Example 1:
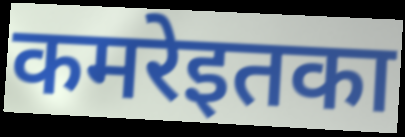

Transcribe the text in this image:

कमरेइतका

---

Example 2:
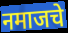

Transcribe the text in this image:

नमाजचे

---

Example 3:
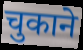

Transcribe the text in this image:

चुकाने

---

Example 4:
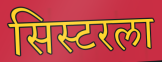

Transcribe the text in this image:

सिस्टरला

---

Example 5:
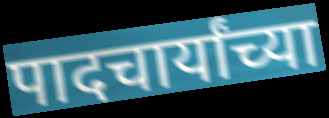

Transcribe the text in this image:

पादचार्यांच्या